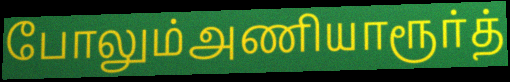
போலும்அணியாரூர்த்